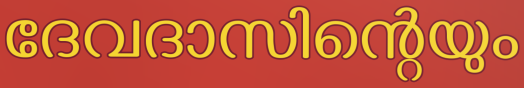
ദേവദാസിന്റെയും